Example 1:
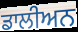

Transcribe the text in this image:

ਡਾਲੀਅਨ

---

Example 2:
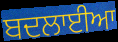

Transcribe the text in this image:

ਬਦਲਾਈਆ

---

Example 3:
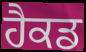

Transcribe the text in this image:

ਹੈਕਡ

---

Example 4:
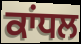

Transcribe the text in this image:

ਕਾਂਧਲ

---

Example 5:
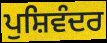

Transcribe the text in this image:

ਪੁਸ਼ਿਵੰਦਰ